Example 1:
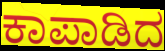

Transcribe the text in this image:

ಕಾಪಾಡಿದ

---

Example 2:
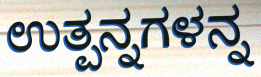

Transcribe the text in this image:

ಉತ್ಪನ್ನಗಳನ್ನ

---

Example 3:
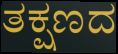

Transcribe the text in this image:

ತಕ್ಷಣದ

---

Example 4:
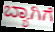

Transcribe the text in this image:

ಬ್ಯಾಗಿಗೆ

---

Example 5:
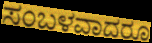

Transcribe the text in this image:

ಸಂಬಳವಾದರೂ